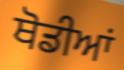
ਥੋਡੀਆਂ